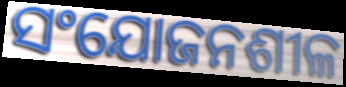
ସଂଯୋଜନଶୀଳ